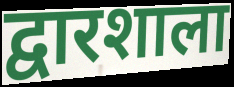
द्वारशाला